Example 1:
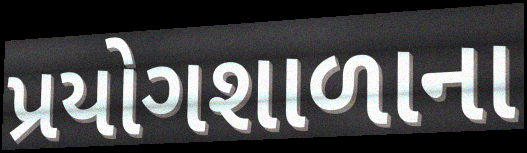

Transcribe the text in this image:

પ્રયોગશાળાના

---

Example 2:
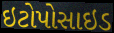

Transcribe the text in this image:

ઇટોપોસાઇડ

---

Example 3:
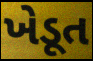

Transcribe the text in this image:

ખેડૂત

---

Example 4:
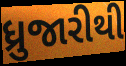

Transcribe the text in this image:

ધ્રુજારીથી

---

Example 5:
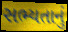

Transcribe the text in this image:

સભ્યતાનું